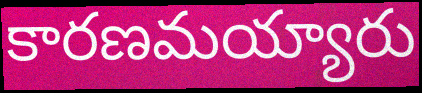
కారణమయ్యారు